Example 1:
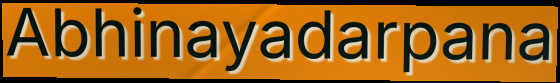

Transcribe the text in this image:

Abhinayadarpana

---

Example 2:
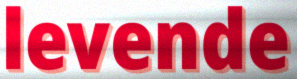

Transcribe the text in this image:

levende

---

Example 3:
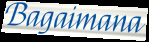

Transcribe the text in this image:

Bagaimana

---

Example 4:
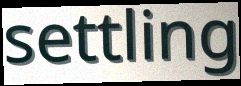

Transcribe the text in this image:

settling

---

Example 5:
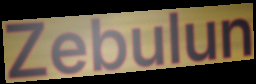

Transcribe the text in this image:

Zebulun